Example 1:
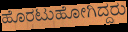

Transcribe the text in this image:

ಹೊರಟುಹೋಗಿದ್ದರು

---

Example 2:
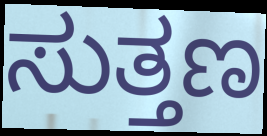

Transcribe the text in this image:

ಸುತ್ತಣ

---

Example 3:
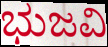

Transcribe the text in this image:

ಭುಜವಿ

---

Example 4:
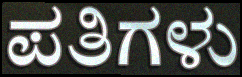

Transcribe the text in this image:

ಪತಿಗಳು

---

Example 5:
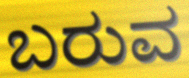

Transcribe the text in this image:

ಬರುವ